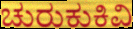
ಚುರುಕುಕಿವಿ